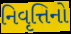
નિવૃત્તિનો